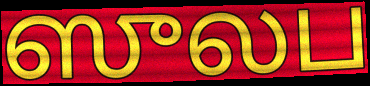
ஸுலப